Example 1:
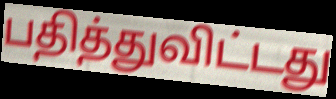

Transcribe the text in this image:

பதித்துவிட்டது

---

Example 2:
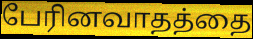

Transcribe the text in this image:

பேரினவாதத்தை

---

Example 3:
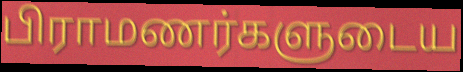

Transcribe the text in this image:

பிராமணர்களுடைய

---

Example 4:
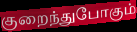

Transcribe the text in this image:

குறைந்துபோகும்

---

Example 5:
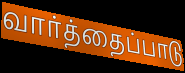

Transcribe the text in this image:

வார்த்தைப்பாடு